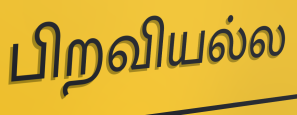
பிறவியல்ல